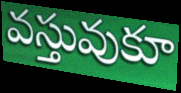
వస్తువుకూ